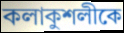
কলাকুশলীকে